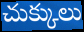
చుక్కులు